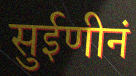
सुईणीनं